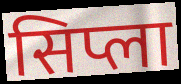
सिप्ला